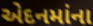
એદનમાંના